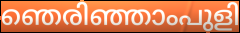
ഞെരിഞ്ഞാംപുളി